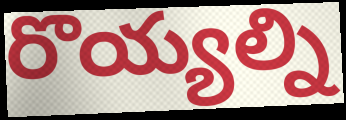
రొయ్యల్ని